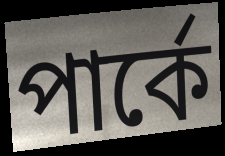
পার্কে